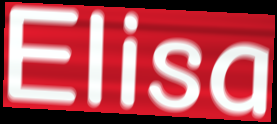
Elisa